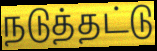
நடுத்தட்டு